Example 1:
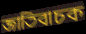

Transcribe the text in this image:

জাতিবাচক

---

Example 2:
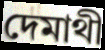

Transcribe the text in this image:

দেমাথী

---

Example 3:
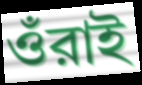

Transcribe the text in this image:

ওঁরাই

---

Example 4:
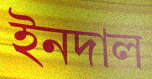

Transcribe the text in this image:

ইনদাল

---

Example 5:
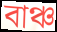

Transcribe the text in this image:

বাঞ্চ